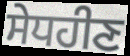
ਸੇਧਹੀਣ